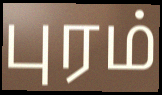
புரம்